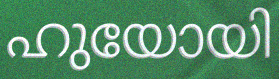
ഹുയോയി